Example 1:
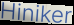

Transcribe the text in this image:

Hiniker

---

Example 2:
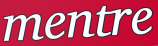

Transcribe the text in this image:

mentre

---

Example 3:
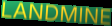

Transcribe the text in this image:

LANDMINE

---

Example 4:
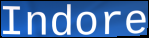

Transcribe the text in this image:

Indore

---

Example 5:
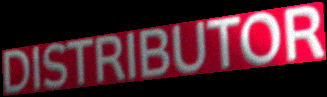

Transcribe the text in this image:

DISTRIBUTOR